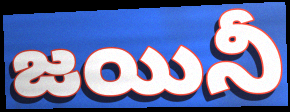
జయినీ